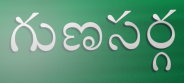
గుణసర్గ